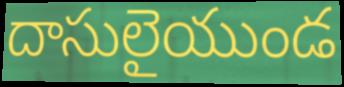
దాసులైయుండ